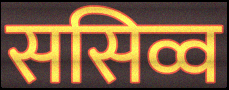
ससिव्व